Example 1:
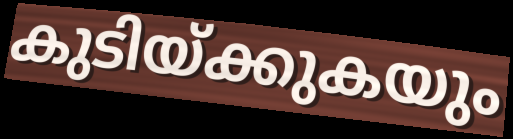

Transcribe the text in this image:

കുടിയ്ക്കുകയും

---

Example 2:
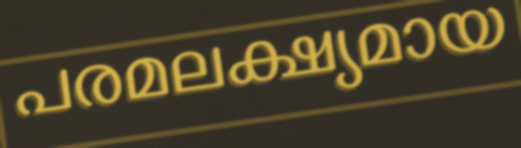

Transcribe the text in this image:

പരമലക്ഷ്യമായ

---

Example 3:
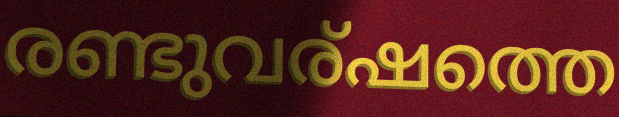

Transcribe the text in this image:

രണ്ടുവര്ഷത്തെ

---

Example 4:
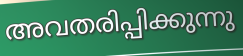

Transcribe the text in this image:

അവതരിപ്പിക്കുന്നു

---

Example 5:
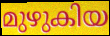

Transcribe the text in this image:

മുഴുകിയ